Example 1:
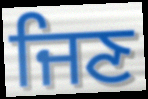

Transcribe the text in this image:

ਜਿਣ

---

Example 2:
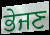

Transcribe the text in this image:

ਭੇਜਣ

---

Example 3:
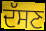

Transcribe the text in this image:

ਦੱਸਣ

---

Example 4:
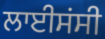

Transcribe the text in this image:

ਲਾਈਸਂਸੀ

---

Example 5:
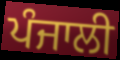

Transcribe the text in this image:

ਪੰਜਾਲੀ